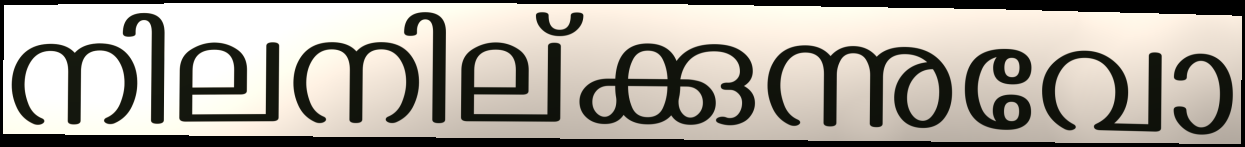
നിലനില്ക്കുന്നുവോ